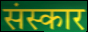
संस्‍कार